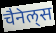
चैनेल्स